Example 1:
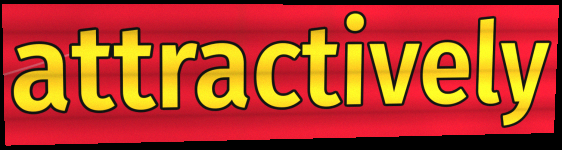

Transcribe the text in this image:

attractively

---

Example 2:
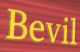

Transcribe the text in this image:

Bevil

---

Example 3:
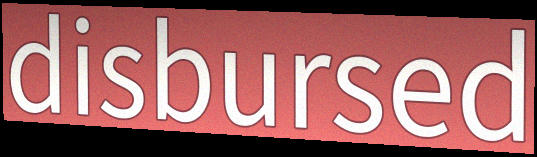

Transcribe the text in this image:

disbursed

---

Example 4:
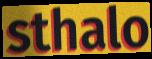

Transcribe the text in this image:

sthalo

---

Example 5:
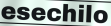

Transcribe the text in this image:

esechilo